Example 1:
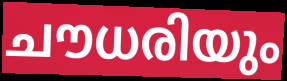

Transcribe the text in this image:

ചൗധരിയും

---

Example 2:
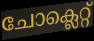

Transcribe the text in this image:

ചോക്ലെറ്റ്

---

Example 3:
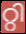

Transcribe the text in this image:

റ്റി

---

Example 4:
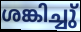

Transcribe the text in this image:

ശങ്കിച്ചു്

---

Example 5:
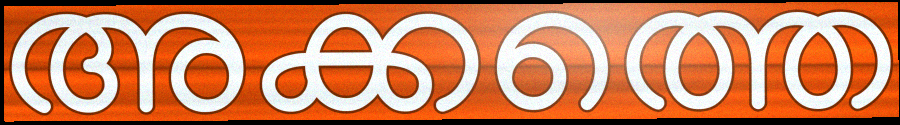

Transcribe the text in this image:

അക്കത്തെ